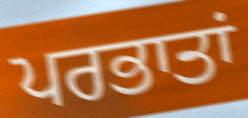
ਪਰਭਾਤਾਂ